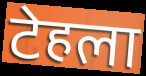
टेहला